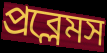
প্রব্লেমস